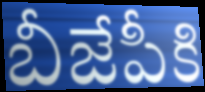
బీజేపీకి